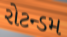
રોટન્ડમ